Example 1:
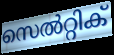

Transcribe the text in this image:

സെൽറ്റിക്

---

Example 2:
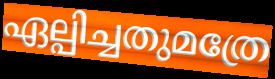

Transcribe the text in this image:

ഏല്പിച്ചതുമത്രേ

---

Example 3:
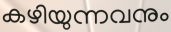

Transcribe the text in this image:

കഴിയുന്നവനും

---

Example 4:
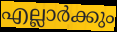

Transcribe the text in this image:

എല്ലാർക്കും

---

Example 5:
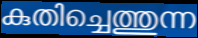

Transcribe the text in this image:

കുതിച്ചെത്തുന്ന